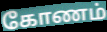
கோணம்